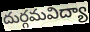
దుర్గమవిద్యా